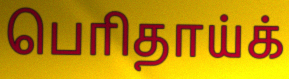
பெரிதாய்க்